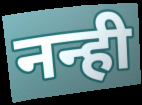
नन्ही